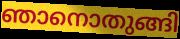
ഞാനൊതുങ്ങി